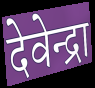
देवेन्द्रा